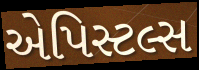
એપિસ્ટલ્સ